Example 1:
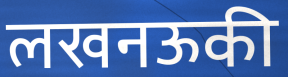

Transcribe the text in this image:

लखनऊकी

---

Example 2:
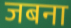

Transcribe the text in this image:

जबना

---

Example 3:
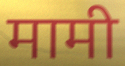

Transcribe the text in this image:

मामी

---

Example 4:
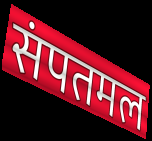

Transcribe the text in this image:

संपतमल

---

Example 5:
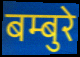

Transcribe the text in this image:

बम्बुरे